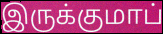
இருக்குமாப்